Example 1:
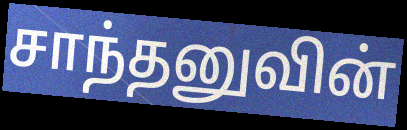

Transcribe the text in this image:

சாந்தனுவின்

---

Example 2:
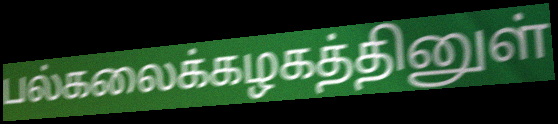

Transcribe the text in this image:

பல்கலைக்கழகத்தினுள்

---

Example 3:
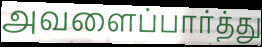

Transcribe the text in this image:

அவளைப்பார்த்து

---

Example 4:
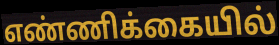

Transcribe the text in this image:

எண்ணிக்கையில்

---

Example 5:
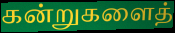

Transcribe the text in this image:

கன்றுகளைத்